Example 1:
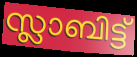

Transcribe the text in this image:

സ്ലാബിട്ട്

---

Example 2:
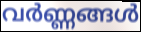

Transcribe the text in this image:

വർണ്ണങ്ങൾ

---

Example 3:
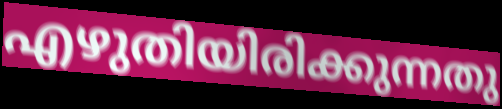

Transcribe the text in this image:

എഴുതിയിരിക്കുന്നതു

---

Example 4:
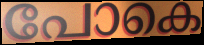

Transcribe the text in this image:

പോകെ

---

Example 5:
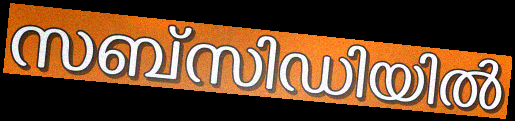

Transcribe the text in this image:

സബ്സിഡിയിൽ